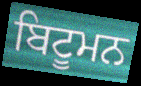
ਬਿਟੂਮਨ